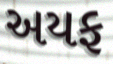
અયફ